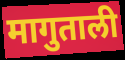
मागुताली